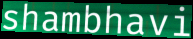
shambhavi